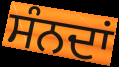
ਸੰਨਦਾਂ